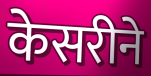
केसरीने